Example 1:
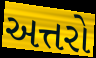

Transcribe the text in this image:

અત્તરો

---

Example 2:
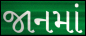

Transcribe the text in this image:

જાનમાં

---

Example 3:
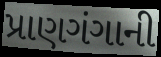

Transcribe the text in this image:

પ્રાણગંગાની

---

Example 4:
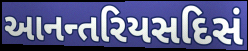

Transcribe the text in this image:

આનન્તરિયસદિસં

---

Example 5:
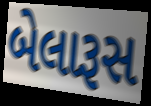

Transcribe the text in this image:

બેલારૂસ